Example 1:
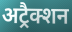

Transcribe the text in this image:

अट्रैक्शन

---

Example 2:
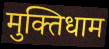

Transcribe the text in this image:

मुक्तिधाम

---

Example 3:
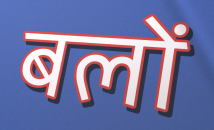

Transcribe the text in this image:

बलों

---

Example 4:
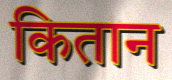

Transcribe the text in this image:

कितान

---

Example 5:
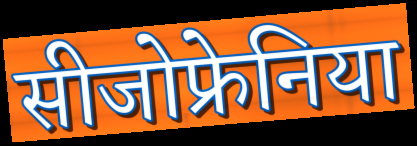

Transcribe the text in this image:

सीजोफ्रेनिया